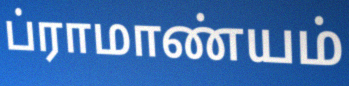
ப்ராமாண்யம்